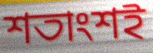
শতাংশই